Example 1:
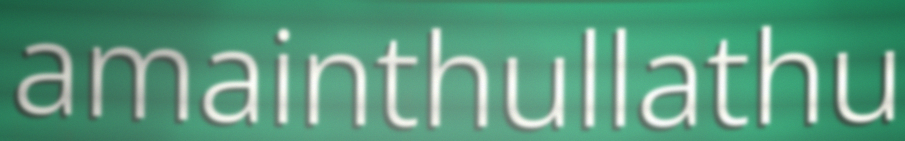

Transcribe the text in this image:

amainthullathu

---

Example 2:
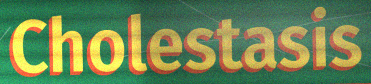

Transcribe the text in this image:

Cholestasis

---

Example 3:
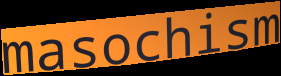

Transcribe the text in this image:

masochism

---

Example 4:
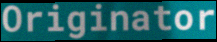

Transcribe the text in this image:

Originator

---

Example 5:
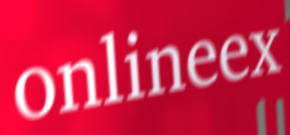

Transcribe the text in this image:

onlineex